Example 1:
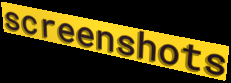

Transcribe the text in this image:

screenshots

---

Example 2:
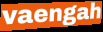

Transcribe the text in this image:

vaengah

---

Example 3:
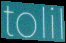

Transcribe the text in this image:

tolil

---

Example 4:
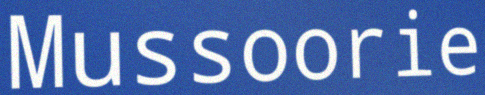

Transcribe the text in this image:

Mussoorie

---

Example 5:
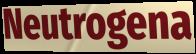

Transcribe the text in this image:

Neutrogena